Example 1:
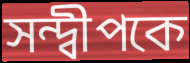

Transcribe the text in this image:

সন্দ্বীপকে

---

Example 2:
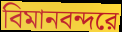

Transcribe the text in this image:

বিমানবন্দরে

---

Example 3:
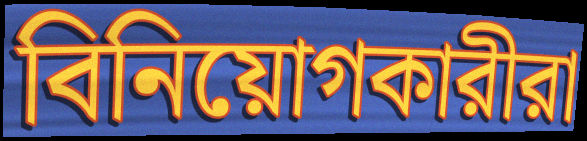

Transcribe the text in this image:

বিনিয়োগকারীরা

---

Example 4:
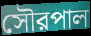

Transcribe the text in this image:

সৌরপাল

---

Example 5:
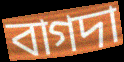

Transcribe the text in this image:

বাগদা